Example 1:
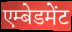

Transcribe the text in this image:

एम्बेडमेंट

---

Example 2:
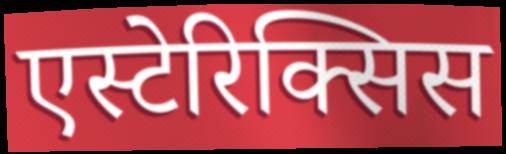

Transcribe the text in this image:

एस्टेरिक्सिस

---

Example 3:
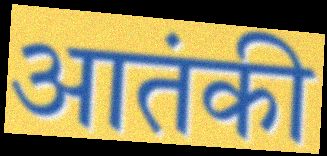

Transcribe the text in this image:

आतंकी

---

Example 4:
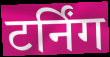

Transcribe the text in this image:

टर्निंग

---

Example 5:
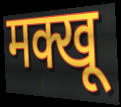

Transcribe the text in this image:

मक्खू